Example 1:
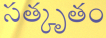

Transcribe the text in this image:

సత్కృతం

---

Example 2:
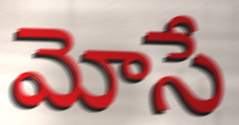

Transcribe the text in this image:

మోసే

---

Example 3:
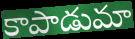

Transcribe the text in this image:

కాపాడుమా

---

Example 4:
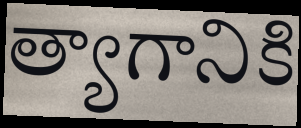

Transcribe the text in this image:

త్యాగానికి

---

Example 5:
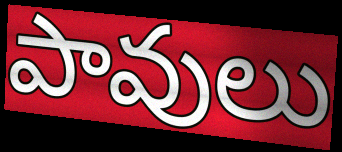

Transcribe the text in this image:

పావులు